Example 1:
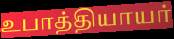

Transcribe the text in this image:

உபாத்தியாயர்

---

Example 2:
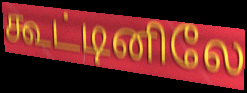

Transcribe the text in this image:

கூட்டினிலே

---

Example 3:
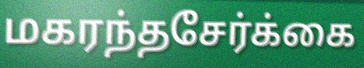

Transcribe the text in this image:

மகரந்தசேர்க்கை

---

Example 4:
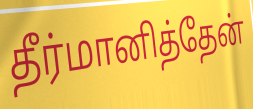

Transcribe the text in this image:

தீர்மானித்தேன்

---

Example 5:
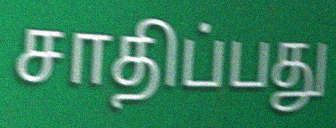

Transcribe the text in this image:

சாதிப்பது